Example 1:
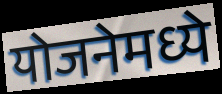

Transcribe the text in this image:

योजनेमध्ये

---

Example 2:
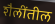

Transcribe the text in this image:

शैलींतील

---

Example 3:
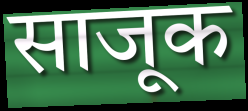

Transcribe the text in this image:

साजूक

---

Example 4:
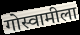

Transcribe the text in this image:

गोस्वामीला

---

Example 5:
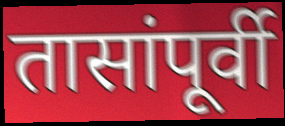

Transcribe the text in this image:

तासांपूर्वी